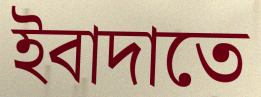
ইবাদাতে